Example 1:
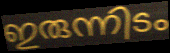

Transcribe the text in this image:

ഇരുന്നിടം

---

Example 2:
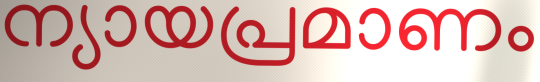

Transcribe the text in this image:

ന്യായപ്രമാണം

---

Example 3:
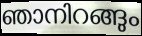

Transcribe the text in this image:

ഞാനിറങ്ങും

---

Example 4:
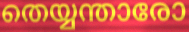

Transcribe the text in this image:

തെയ്യന്താരോ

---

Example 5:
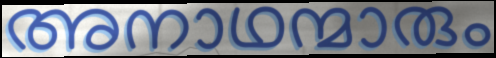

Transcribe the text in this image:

അനാഥന്മാരും